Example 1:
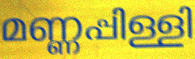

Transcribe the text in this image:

മണ്ണപ്പിള്ളി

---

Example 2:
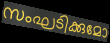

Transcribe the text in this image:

സംഘടിക്കുമോ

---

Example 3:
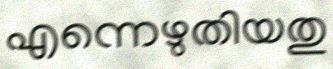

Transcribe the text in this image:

എന്നെഴുതിയതു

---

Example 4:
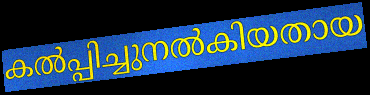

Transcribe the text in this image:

കൽപ്പിച്ചുനൽകിയതായ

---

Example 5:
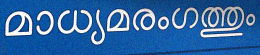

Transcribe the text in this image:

മാധ്യമരംഗത്തും